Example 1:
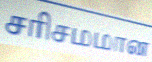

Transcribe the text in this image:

சரிசமமான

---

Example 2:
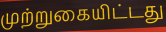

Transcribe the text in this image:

முற்றுகையிட்டது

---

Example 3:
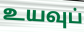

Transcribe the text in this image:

உயவுப்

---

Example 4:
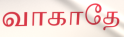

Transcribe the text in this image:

வாகாதே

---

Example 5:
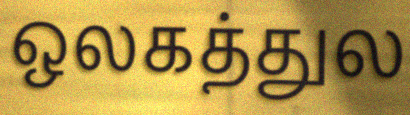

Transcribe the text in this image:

ஒலகத்துல